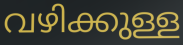
വഴിക്കുള്ള